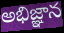
అభిజ్ఞాన